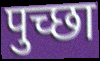
पुच्छा